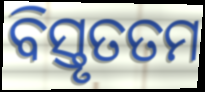
ବିସ୍ତୃତତମ